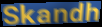
Skandh